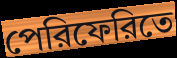
পেরিফেরিতে